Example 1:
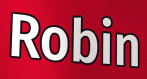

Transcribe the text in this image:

Robin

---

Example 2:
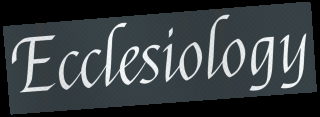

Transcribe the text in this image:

Ecclesiology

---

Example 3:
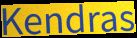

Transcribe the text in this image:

Kendras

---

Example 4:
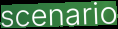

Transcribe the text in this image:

scenario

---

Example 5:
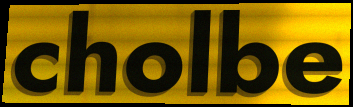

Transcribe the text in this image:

cholbe